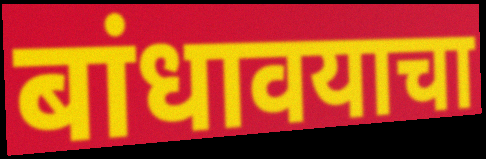
बांधावयाचा